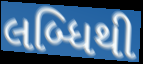
લબ્ધિથી